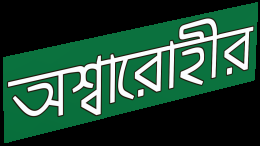
অশ্বারোহীর